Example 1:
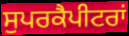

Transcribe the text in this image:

ਸੁਪਰਕੈਪੀਟਰਾਂ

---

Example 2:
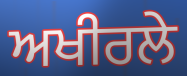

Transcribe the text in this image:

ਅਖੀਰਲੇ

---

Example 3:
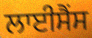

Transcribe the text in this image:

ਲਾਈਸੈਂਸ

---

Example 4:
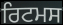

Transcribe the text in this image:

ਰਿਟਮਸ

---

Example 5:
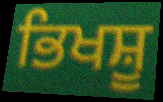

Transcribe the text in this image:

ਭਿਖਸ਼ੂ